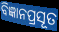
ବିଜ୍ଞାନପ୍ରସୂତ